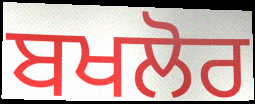
ਬਖਲੋਰ